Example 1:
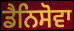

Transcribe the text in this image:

ਡੈਨਿਸੋਵਾ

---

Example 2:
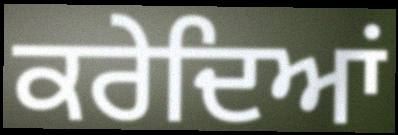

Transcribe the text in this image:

ਕਰੇਦਿਆਂ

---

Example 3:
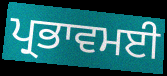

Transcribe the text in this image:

ਪ੍ਰਭਾਵਮਈ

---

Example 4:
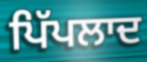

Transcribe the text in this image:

ਪਿੱਪਲਾਦ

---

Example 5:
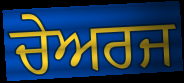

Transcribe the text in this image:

ਚੇਅਰਜ